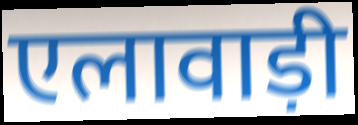
एलावाड़ी